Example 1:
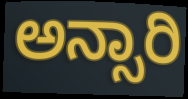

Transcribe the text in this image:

ಅನ್ಸಾರಿ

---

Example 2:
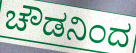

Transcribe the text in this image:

ಚೌಡನಿಂದ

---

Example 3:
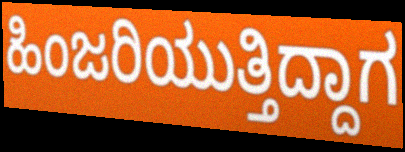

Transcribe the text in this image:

ಹಿಂಜರಿಯುತ್ತಿದ್ದಾಗ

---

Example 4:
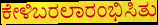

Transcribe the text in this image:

ಕೇಳಿಬರಲಾರಂಭಿಸಿತು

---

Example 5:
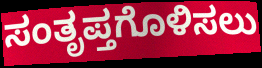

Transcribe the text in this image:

ಸಂತೃಪ್ತಗೊಳಿಸಲು